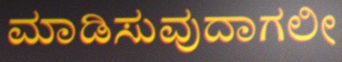
ಮಾಡಿಸುವುದಾಗಲೀ